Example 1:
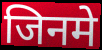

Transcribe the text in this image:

जिनमे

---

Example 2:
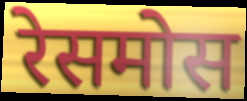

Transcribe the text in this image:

रेसमोस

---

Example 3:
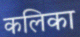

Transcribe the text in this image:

कलिका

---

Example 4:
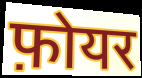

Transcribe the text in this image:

फ़ोयर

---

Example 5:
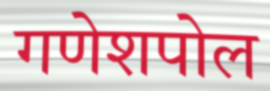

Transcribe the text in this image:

गणेशपोल